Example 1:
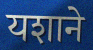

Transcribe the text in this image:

यशाने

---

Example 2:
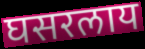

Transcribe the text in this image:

घसरलाय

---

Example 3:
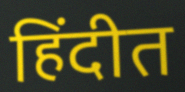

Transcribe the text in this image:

हिंदीत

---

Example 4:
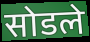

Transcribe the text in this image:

सोडले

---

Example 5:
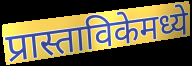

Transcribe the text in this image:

प्रास्ताविकेमध्ये